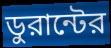
ডুরান্টের